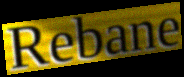
Rebane